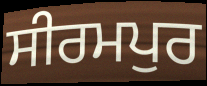
ਸੀਰਮਪੁਰ